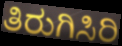
ತಿರುಗಿಸಿರಿ